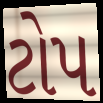
ટોપ